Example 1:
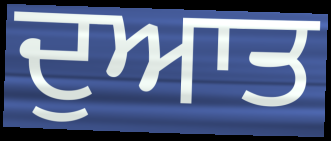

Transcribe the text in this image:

ਦੁਆਤ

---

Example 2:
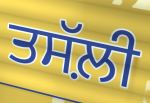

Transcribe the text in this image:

ਤਸੱਲ਼ੀ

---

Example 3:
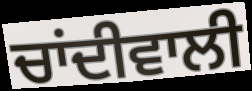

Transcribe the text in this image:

ਚਾਂਦੀਵਾਲੀ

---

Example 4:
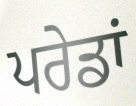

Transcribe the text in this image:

ਪਰੇਡਾਂ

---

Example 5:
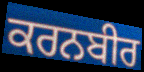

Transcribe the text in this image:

ਕਰਨਬੀਰ